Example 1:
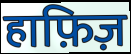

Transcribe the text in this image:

हाफ़िज़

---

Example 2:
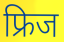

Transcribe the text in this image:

फ्रिज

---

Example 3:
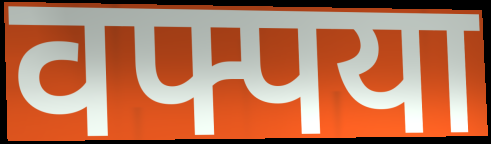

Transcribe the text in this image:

वफ्पया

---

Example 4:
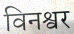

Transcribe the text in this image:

विनश्वर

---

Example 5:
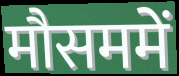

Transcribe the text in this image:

मौसममें